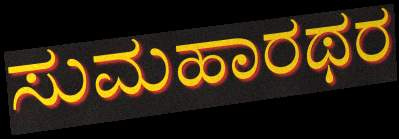
ಸುಮಹಾರಥರ